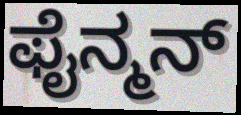
ಫೈನ್ಮನ್